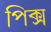
পিক্স